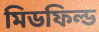
মিডফিল্ড